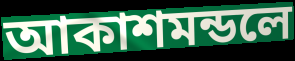
আকাশমন্ডলে